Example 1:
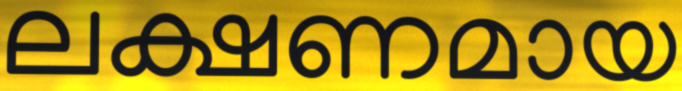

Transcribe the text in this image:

ലക്ഷണമായ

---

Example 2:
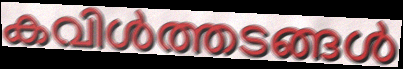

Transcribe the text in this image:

കവിൾത്തടങ്ങൾ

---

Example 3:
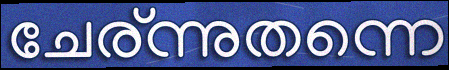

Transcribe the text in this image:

ചേര്ന്നുതന്നെ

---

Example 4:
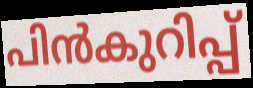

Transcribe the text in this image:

പിൻകുറിപ്പ്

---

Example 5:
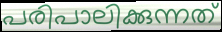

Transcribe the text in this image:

പരിപാലിക്കുന്നത്